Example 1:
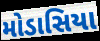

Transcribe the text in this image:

મોડાસિયા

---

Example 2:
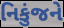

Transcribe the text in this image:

નિકુંજને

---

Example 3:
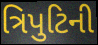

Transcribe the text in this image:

ત્રિપુટિની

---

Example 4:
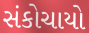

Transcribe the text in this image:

સંકોચાયો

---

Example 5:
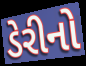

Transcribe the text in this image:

ડેરીનો